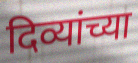
दिव्यांच्या